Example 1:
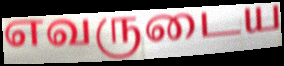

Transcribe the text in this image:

எவருடைய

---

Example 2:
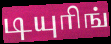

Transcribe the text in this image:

டியுரிங்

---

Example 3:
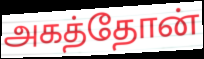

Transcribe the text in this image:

அகத்தோன்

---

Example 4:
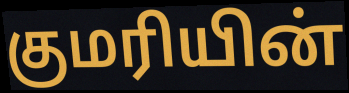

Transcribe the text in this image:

குமரியின்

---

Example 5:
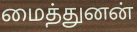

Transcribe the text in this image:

மைத்துனன்